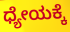
ಧ್ಯೇಯಕ್ಕೆ